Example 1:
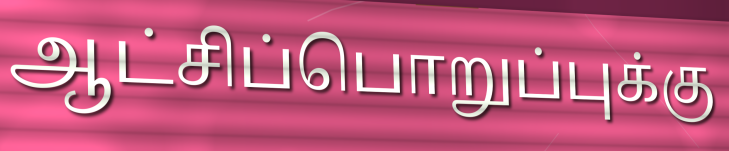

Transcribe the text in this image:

ஆட்சிப்பொறுப்புக்கு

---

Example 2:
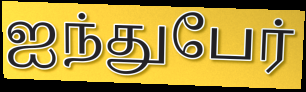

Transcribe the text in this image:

ஐந்துபேர்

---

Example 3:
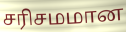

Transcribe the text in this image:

சரிசமமான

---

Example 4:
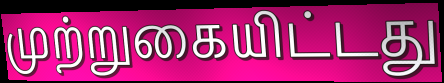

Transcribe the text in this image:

முற்றுகையிட்டது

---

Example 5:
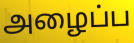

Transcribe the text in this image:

அழைப்ப